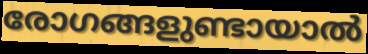
രോഗങ്ങളുണ്ടായാൽ